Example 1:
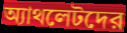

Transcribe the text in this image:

অ্যাথলেটদের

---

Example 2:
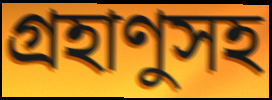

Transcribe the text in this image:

গ্রহাণুসহ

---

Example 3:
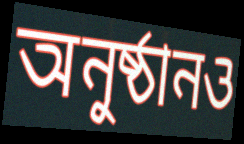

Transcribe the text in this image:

অনুষ্ঠানও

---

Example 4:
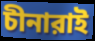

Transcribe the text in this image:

চীনারাই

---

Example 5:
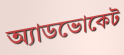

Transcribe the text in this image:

অ্যাডভোকেট